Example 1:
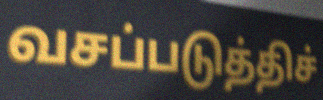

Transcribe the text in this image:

வசப்படுத்திச்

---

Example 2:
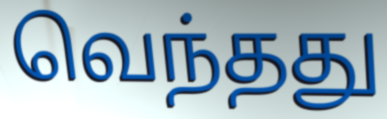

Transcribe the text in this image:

வெந்தது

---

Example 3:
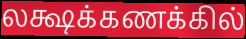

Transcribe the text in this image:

லக்ஷக்கணக்கில்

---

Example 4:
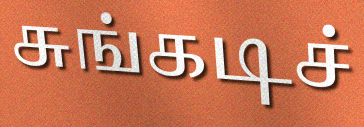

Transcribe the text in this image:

சுங்கடிச்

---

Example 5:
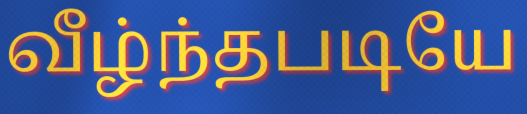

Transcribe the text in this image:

வீழ்ந்தபடியே